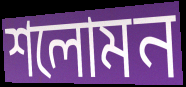
শলোমন